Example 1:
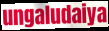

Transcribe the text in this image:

ungaludaiya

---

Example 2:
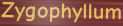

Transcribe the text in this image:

Zygophyllum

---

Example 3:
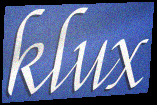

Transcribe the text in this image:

klux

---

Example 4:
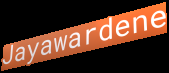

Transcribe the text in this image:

Jayawardene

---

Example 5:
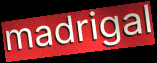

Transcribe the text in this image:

madrigal